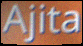
Ajita